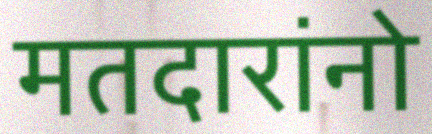
मतदारांनो